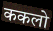
ककलो